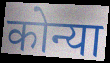
कोन्या